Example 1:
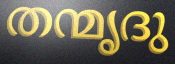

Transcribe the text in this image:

തന്മൃദു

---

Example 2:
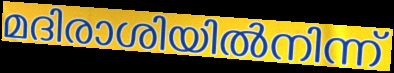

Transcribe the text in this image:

മദിരാശിയിൽനിന്ന്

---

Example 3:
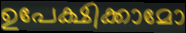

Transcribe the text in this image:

ഉപേക്ഷിക്കാമോ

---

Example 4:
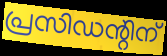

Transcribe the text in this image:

പ്രസിഡന്റിന്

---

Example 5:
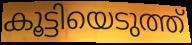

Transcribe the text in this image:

കൂട്ടിയെടുത്ത്